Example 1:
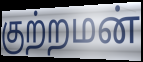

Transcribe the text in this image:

குற்றமன்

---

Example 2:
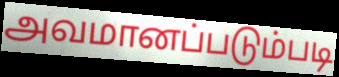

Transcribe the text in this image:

அவமானப்படும்படி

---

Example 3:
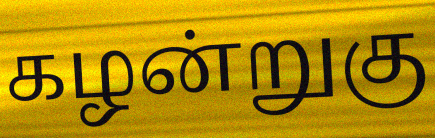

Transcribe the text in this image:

கழன்றுகு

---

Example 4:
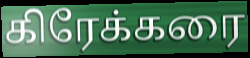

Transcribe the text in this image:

கிரேக்கரை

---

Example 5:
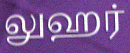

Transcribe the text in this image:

லுஹர்